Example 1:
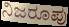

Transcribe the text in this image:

ನಿಜರೂಪು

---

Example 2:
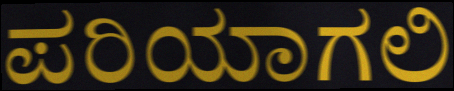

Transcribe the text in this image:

ಪರಿಯಾಗಲಿ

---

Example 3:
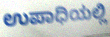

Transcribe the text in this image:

ಉಪಾಧಿಯಲ್ಲಿ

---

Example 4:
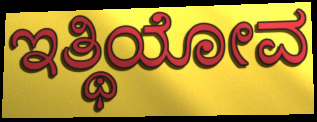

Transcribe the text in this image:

ಇತ್ಥಿಯೋವ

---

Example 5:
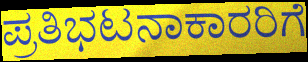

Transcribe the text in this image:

ಪ್ರತಿಭಟನಾಕಾರರಿಗೆ